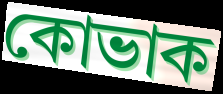
কোভাক